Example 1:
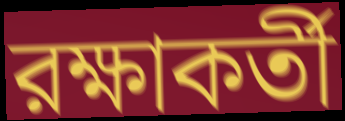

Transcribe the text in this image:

রক্ষাকর্তী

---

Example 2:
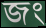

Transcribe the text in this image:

জং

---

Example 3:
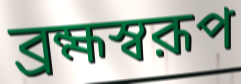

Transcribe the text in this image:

ব্রহ্মস্বরূপ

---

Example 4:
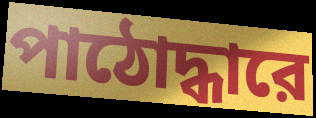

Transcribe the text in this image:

পাঠোদ্ধারে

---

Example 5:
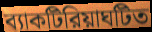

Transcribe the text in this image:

ব্যাকটিরিয়াঘটিত